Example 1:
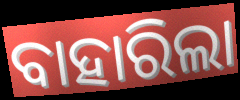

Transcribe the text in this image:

ବାହାରିଲା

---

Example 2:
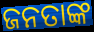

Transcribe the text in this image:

ଜନତାଙ୍କ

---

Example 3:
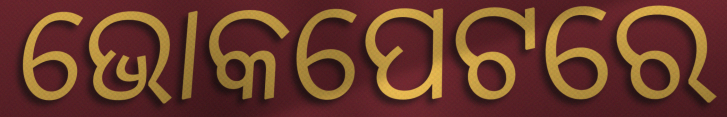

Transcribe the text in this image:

ଭୋକପେଟରେ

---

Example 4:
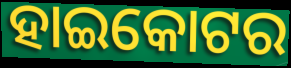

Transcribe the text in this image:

ହାଇକୋଟର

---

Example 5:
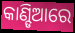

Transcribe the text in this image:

କାଣ୍ଡିଆରେ